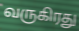
வருகிரது